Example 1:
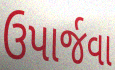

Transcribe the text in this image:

ઉપાર્જવા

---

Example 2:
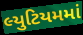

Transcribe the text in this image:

લ્યુટિયમમાં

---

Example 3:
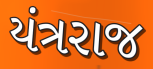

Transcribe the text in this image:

યંત્રરાજ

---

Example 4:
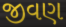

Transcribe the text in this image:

જીવણ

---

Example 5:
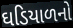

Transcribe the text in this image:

ઘડિયાળનો